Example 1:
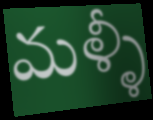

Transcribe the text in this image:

మళ్ళీ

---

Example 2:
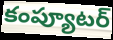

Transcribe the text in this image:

కంప్యూటర్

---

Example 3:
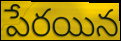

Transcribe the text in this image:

పేరయిన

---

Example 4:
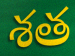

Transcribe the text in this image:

శత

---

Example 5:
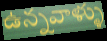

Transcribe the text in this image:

ఉన్నవాళ్ళు